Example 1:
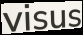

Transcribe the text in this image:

visus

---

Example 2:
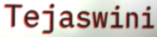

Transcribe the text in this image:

Tejaswini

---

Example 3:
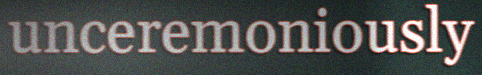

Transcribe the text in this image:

unceremoniously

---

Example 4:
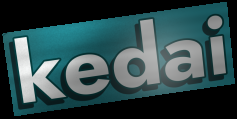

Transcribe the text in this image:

kedai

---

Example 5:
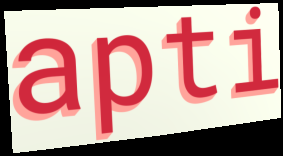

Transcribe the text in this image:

apti